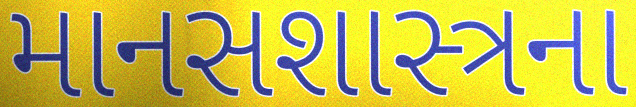
માનસશાસ્ત્રના